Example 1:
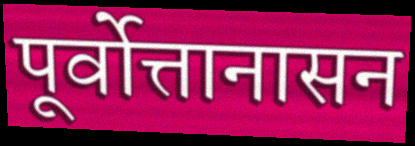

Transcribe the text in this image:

पूर्वोत्तानासन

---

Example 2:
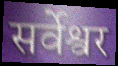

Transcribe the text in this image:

सर्वेश्वर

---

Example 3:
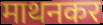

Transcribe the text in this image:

माथनकर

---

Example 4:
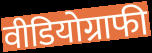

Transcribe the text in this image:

वीडियोग्राफी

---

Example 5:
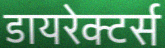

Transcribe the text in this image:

डायरेक्टर्स